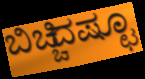
ಬಿಚ್ಚಿದಷ್ಟೂ